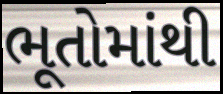
ભૂતોમાંથી